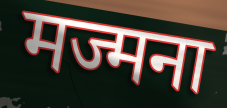
मज्मना